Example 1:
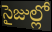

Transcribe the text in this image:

సైజుల్లో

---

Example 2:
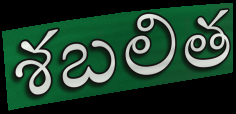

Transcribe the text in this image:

శబలిత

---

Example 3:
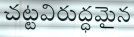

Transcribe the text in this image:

చట్టవిరుద్ధమైన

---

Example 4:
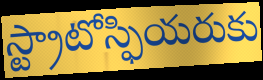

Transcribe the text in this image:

స్ట్రాటోస్ఫియరుకు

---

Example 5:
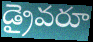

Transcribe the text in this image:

డ్రైవరూ